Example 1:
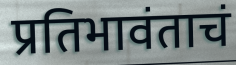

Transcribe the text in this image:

प्रतिभावंताचं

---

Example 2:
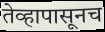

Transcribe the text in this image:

तेव्हापासूनच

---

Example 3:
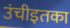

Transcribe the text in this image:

उंचीइतका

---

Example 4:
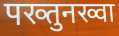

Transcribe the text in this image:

पख्तुनख्वा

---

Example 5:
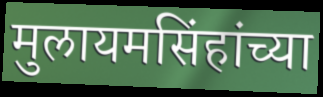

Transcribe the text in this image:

मुलायमसिंहांच्या